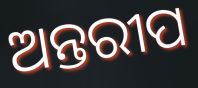
ଅନ୍ତରୀପ